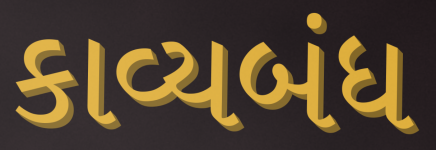
કાવ્યબંધ